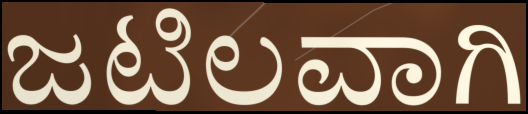
ಜಟಿಲವಾಗಿ